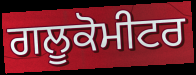
ਗਲੂਕੋਮੀਟਰ